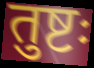
तुष्टः